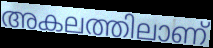
അകലത്തിലാണ്